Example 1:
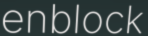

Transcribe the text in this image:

enblock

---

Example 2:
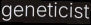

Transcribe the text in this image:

geneticist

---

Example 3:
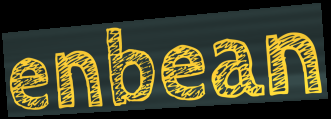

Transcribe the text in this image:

enbean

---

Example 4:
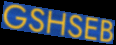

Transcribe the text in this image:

GSHSEB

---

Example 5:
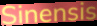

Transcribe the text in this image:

Sinensis